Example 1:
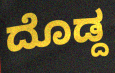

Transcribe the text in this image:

ದೊಡ್ದ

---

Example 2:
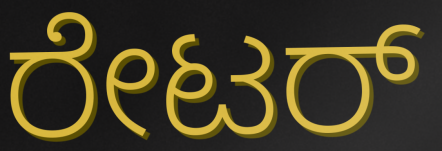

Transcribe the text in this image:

ರೇಟರ್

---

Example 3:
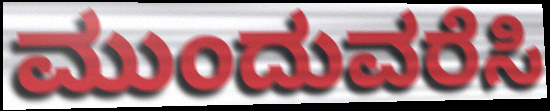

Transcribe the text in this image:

ಮುಂದುವರೆಸಿ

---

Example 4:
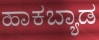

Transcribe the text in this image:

ಹಾಕಬ್ಯಾಡ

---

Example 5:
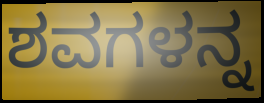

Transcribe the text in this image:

ಶವಗಳನ್ನ